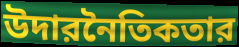
উদারনৈতিকতার